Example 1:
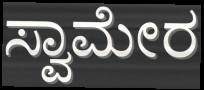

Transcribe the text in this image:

ಸ್ವಾಮೇರ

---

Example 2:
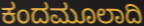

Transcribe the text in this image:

ಕಂದಮೂಲಾದಿ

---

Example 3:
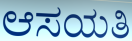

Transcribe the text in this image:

ಆಸಯತಿ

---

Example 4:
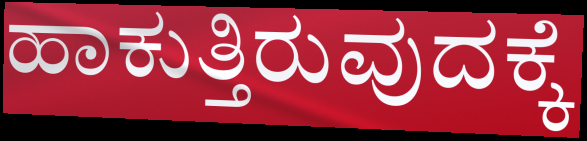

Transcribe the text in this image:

ಹಾಕುತ್ತಿರುವುದಕ್ಕೆ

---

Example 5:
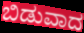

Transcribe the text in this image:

ಬಿಡುವಾದ